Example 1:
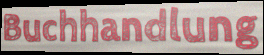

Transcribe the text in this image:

Buchhandlung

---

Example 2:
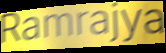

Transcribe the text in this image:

Ramrajya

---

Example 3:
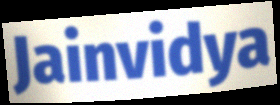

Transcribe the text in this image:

Jainvidya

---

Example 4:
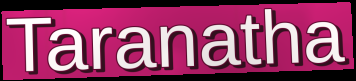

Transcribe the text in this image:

Taranatha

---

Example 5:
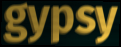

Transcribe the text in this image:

gypsy